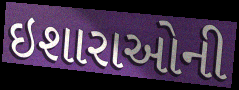
ઇશારાઓની